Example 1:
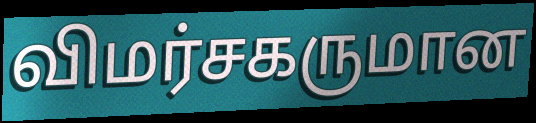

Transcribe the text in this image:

விமர்சகருமான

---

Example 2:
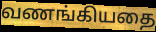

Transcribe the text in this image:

வணங்கியதை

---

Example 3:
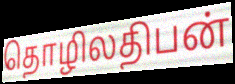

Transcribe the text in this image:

தொழிலதிபன்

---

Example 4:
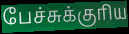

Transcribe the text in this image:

பேச்சுக்குரிய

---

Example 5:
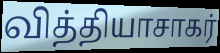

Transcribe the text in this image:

வித்தியாசாகர்